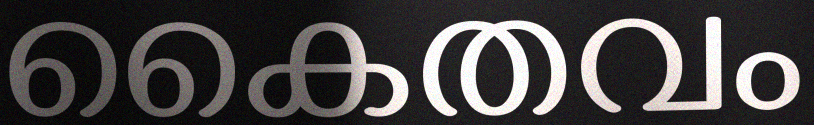
കൈതവം